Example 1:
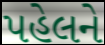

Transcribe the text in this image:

પહેલને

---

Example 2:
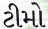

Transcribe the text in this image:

ટીમો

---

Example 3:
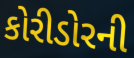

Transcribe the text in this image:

કોરીડોરની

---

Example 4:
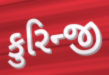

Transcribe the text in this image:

કુરિન્જી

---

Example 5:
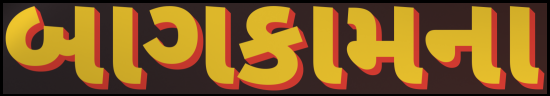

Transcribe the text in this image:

બાગકામના